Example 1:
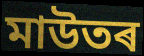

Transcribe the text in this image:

মাউতৰ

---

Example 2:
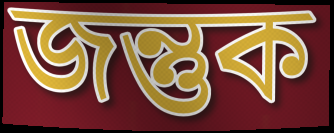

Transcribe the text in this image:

জন্তুক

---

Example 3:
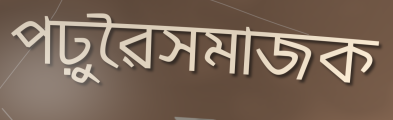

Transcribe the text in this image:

পঢ়ুৱৈসমাজক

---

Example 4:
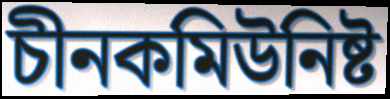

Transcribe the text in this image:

চীনকমিউনিষ্ট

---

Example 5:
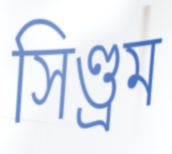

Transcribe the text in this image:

সিণ্ড্ৰম